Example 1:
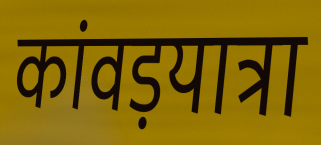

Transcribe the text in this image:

कांवड़यात्रा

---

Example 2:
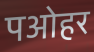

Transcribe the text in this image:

पओहर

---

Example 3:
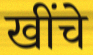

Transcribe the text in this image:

खींचे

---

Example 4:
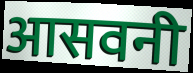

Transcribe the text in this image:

आसवनी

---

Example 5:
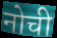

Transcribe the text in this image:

नोची